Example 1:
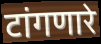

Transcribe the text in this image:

टांगणारे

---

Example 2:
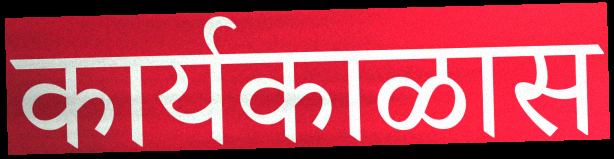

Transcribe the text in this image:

कार्यकाळास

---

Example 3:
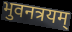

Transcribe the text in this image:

भुवनत्रयम्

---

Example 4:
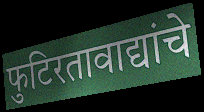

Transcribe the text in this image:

फुटिरतावाद्यांचे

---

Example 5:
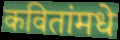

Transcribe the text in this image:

कवितांमधे